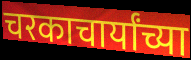
चरकाचार्यांच्या